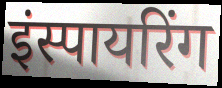
इंस्पायरिंग